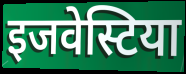
इजवेस्टिया